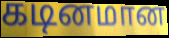
கடினமான